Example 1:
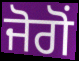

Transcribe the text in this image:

ਜੋਗੋਂ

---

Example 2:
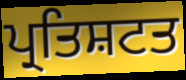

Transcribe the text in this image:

ਪ੍ਰਤਿਸ਼ਟਤ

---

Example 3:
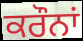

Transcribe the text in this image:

ਕਰੌਨਾਂ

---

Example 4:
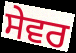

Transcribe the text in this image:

ਸੇਵਰ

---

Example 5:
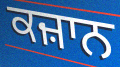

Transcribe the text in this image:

ਕਜ਼ਾਨ